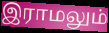
இராமலும்